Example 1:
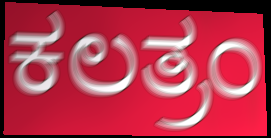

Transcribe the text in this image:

ಕಲತ್ರಂ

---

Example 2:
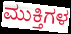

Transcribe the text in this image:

ಮುಕ್ತಿಗಳ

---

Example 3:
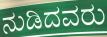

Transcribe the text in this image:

ನುಡಿದವರು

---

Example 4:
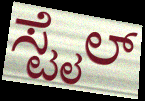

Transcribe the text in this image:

ಸ್ಟೈಲ್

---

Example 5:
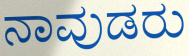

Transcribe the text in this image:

ನಾವುಡರು